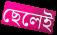
ছেলেই